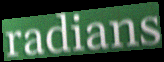
radians